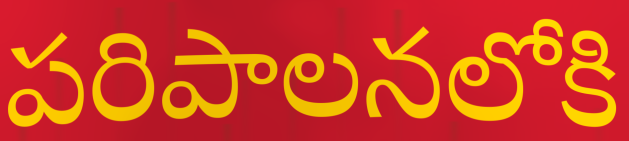
పరిపాలనలోకి